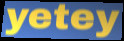
yetey